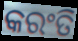
କରଂତି